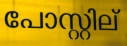
പോസ്റ്റില്